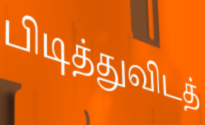
பிடித்துவிடத்